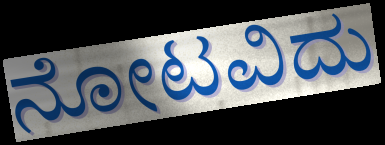
ನೋಟವಿದು